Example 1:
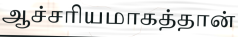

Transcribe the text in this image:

ஆச்சரியமாகத்தான்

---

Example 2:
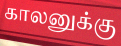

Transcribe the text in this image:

காலனுக்கு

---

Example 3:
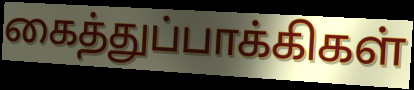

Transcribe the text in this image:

கைத்துப்பாக்கிகள்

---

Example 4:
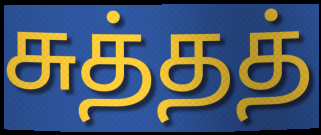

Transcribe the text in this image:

சுத்தத்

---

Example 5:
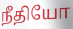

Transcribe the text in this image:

நீதியோ